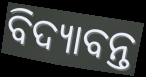
ବିଦ୍ୟାବନ୍ତ